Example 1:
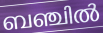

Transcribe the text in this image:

ബഞ്ചിൽ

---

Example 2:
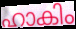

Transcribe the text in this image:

ഹാകിം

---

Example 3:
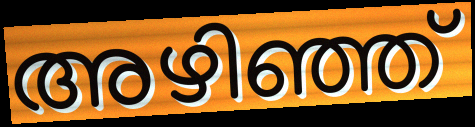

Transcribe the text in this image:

അഴിഞ്ഞ്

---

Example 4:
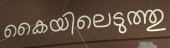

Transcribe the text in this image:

കൈയിലെടുത്തു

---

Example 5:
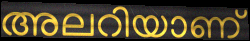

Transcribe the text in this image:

അലറിയാണ്